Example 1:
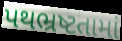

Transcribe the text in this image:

પથભ્રષ્ટતામાં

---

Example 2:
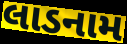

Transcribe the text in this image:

લાડનામ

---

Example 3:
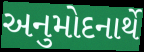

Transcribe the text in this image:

અનુમોદનાર્થે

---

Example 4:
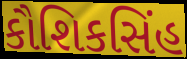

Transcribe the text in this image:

કૌશિકસિંહ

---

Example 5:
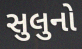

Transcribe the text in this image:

સુલુનો